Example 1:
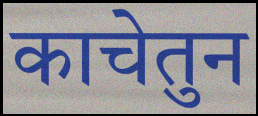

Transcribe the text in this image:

काचेतुन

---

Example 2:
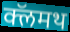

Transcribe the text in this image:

क्लॅमथ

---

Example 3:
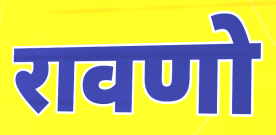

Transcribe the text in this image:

रावणो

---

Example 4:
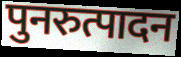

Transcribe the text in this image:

पुनरुत्पादन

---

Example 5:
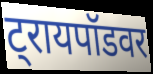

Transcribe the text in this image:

ट्रायपॉडवर